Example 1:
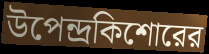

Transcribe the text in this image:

উপেন্দ্রকিশোরের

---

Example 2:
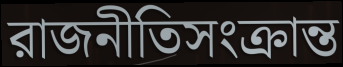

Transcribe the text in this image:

রাজনীতিসংক্রান্ত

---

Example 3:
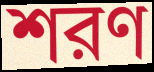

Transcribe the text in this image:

শরণ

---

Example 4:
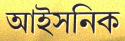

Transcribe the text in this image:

আইসনিক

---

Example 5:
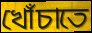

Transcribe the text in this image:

খোঁচাতে